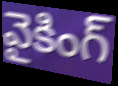
వైకింగ్